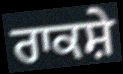
ਰਾਕਸ਼ੇ